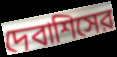
দেবাশিসের